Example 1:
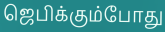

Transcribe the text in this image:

ஜெபிக்கும்போது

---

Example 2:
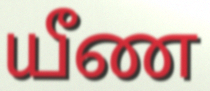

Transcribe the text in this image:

யீண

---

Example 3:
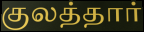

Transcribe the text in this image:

குலத்தார்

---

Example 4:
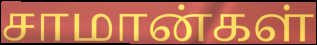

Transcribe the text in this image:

சாமான்கள்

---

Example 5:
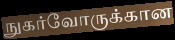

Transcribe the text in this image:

நுகர்வோருக்கான